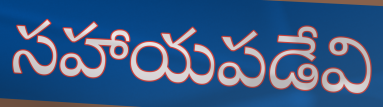
సహాయపడేవి